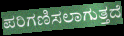
ಪರಿಗಣಿಸಲಾಗುತ್ತದೆ